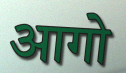
आगो